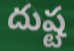
దుష్ట